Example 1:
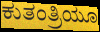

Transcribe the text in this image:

ಕುತಂತ್ರಿಯೂ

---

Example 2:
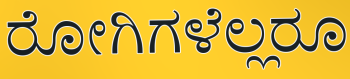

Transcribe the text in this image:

ರೋಗಿಗಳೆಲ್ಲರೂ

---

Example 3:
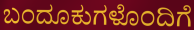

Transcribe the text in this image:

ಬಂದೂಕುಗಳೊಂದಿಗೆ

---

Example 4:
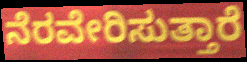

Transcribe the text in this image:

ನೆರವೇರಿಸುತ್ತಾರೆ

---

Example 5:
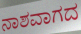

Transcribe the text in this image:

ನಾಶವಾಗದ